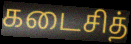
கடைசித்